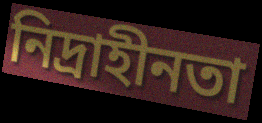
নিদ্রাহীনতা